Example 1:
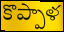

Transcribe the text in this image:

కొప్పాళ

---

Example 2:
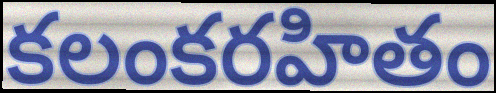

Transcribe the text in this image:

కలంకరహితం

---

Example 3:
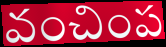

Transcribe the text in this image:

వంచింప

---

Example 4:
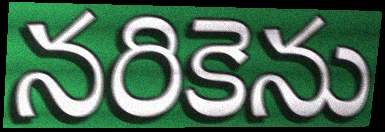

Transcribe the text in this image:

నరికెను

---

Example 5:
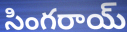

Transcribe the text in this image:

సింగరాయ్